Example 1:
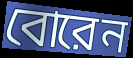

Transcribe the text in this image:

বোরেন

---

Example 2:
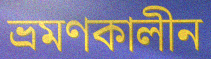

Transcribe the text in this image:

ভ্রমণকালীন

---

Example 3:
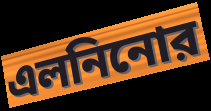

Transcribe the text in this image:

এলনিনোর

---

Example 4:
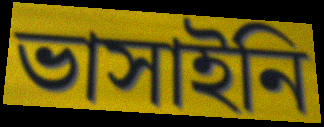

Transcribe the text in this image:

ভাসাইনি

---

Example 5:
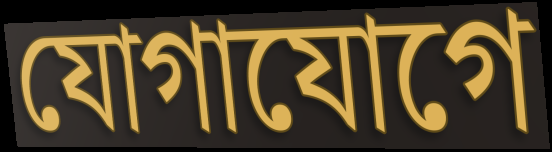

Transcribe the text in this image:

যোগাযোগে